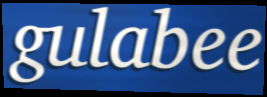
gulabee